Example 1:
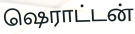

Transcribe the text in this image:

ஷெராட்டன்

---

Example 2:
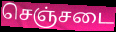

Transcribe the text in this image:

செஞ்சடை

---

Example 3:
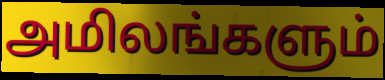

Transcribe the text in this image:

அமிலங்களும்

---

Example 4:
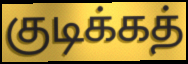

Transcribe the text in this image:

குடிக்கத்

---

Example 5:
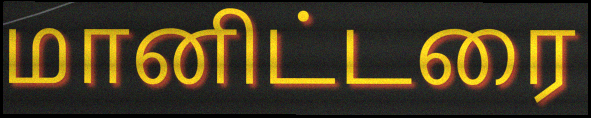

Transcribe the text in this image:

மானிட்டரை